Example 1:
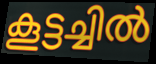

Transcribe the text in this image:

കൂട്ടച്ചിൽ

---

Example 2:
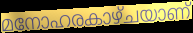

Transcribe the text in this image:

മനോഹരകാഴ്ചയാണ്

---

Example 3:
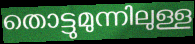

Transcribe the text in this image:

തൊട്ടുമുന്നിലുള്ള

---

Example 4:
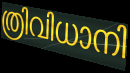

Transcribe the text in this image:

ത്രിവിധാനി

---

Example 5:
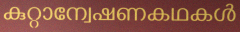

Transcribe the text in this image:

കുറ്റാന്വേഷണകഥകൾ